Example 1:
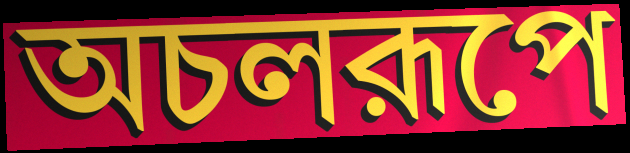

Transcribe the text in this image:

অচলরূপে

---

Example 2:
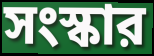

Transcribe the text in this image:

সংস্কার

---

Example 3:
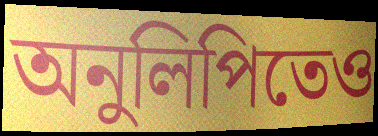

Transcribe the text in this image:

অনুলিপিতেও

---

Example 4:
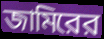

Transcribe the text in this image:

জামিরের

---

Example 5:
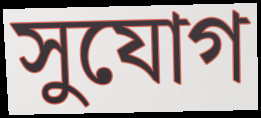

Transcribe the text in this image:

সুযোগ